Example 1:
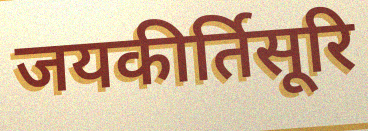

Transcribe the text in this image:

जयकीर्तिसूरि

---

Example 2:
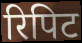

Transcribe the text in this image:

रिपिट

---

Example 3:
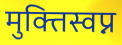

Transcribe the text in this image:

मुक्तिस्वप्न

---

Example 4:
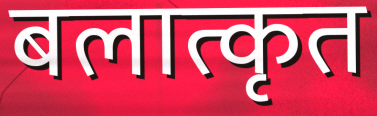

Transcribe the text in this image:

बलात्कृत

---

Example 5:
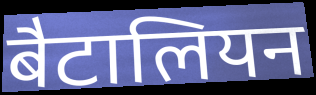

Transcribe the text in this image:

बैटालियन